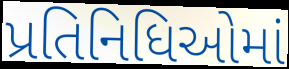
પ્રતિનિધિઓમાં